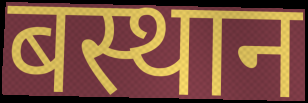
बस्थान